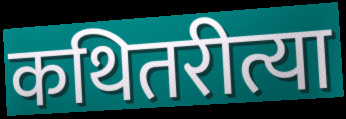
कथितरीत्या